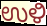
ಉಳಿ